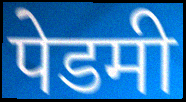
पेडमी